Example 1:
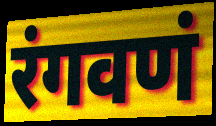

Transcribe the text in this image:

रंगवणं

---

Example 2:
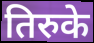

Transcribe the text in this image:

तिरुके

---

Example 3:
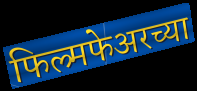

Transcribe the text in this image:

फिल्मफेअरच्या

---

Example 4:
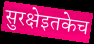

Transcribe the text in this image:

सुरक्षेइतकेच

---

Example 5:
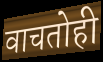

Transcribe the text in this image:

वाचतोही